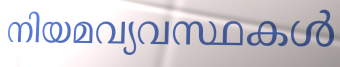
നിയമവ്യവസ്ഥകൾ